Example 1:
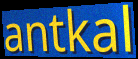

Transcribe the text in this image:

antkal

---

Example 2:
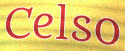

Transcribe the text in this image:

Celso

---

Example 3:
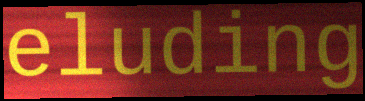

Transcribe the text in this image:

eluding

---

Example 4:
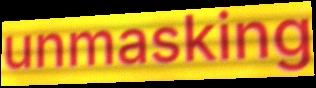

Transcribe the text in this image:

unmasking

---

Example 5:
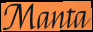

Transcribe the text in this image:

Manta